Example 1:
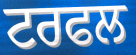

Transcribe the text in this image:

ਟਰਫਲ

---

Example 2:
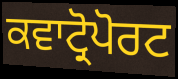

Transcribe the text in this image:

ਕਵਾਟ੍ਰੋਪੋਰਟ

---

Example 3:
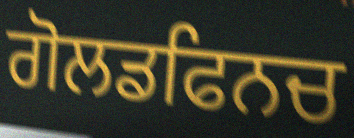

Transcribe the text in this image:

ਗੋਲਡਫਿਨਚ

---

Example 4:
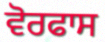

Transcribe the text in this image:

ਵੋਰਫਾਸ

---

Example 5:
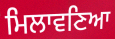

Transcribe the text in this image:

ਮਿਲਾਵਣਿਆ